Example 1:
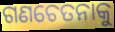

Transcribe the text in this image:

ଗଣଚେତନାକୁ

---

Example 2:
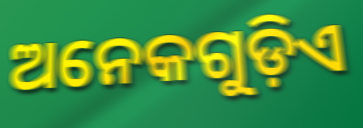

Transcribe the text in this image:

ଅନେକଗୁଡ଼ିଏ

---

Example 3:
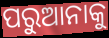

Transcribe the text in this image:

ପରୁଆନାକୁ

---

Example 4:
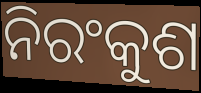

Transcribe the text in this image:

ନିରଂକୁଶ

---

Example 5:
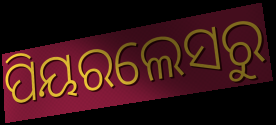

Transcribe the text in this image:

ପିୟରଲେସରୁ